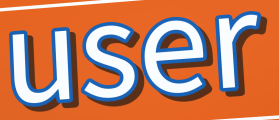
user